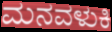
ಮನವಳುಕಿ